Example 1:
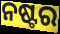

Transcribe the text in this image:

ନଷ୍ଟର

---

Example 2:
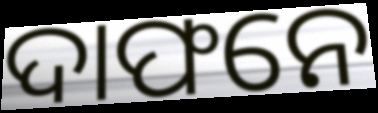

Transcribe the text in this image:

ଦାଫନେ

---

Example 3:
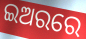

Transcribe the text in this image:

ଇଅରରେ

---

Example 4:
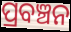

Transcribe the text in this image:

ପ୍ରବଞ୍ଚନ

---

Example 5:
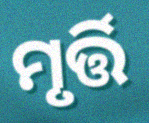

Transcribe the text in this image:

ମୃର୍ତ୍ତି